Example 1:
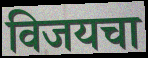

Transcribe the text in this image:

विजयचा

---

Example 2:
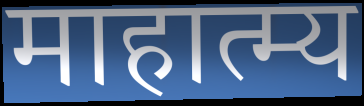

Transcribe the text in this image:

माहात्म्य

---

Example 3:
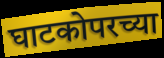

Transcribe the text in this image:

घाटकोपरच्या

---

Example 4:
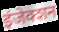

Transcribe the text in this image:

इंजेक्शन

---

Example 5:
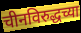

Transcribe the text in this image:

चीनविरुद्धच्या